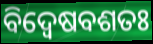
ବିଦ୍ୱେଷବଶତଃ